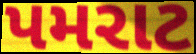
પમરાટ